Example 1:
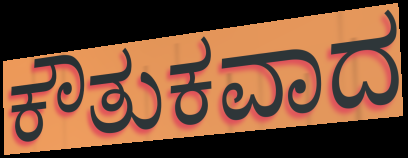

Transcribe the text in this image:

ಕೌತುಕವಾದ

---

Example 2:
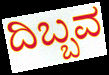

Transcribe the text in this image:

ದಿಬ್ಬವ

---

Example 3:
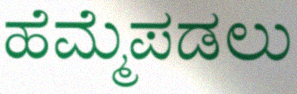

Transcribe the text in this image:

ಹೆಮ್ಮೆಪಡಲು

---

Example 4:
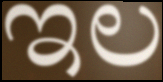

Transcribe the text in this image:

ಇಲ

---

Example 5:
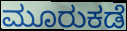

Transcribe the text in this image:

ಮೂರುಕಡೆ